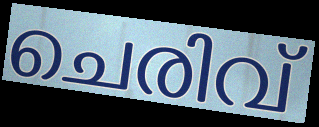
ചെരിവ്